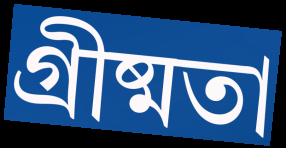
গ্ৰীষ্মতা